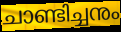
ചാണ്ടിച്ചനും